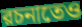
রচনাতেও